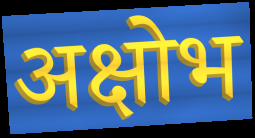
अक्षोभ